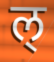
ल्